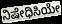
ನಿಷೇಧಿಸಿಯೇ